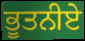
ਭੂਤਨੀਏ